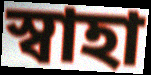
স্বাহা